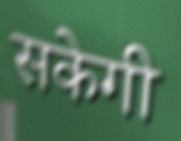
सकेगी